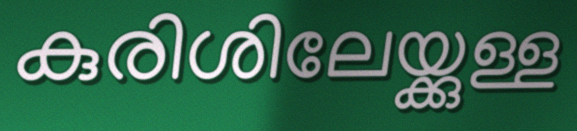
കുരിശിലേയ്ക്കുള്ള